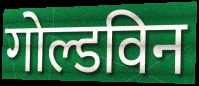
गोल्डविन